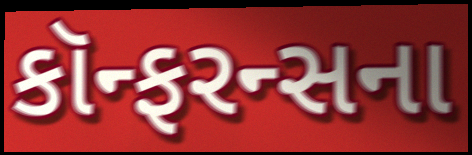
કૉન્ફરન્સના